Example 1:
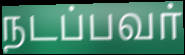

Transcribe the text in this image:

நடப்பவர்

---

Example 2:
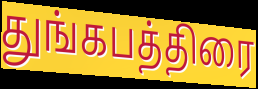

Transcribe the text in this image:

துங்கபத்திரை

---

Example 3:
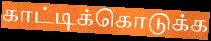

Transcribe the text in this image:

காட்டிக்கொடுக்க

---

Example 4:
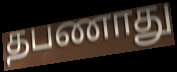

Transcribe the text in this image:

தபணாது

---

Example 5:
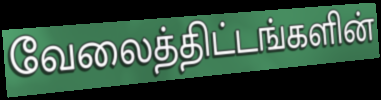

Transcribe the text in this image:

வேலைத்திட்டங்களின்